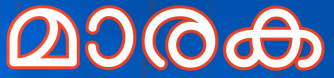
മാരക